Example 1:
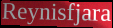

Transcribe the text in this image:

Reynisfjara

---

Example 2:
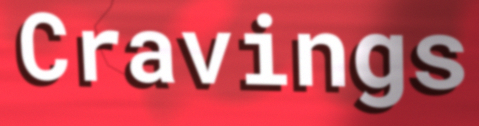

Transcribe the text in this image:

Cravings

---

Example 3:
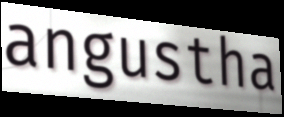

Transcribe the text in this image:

angustha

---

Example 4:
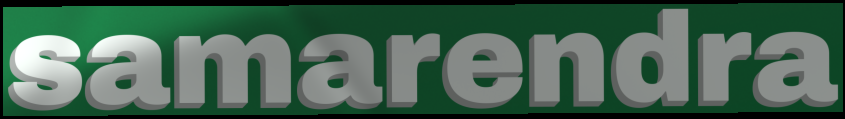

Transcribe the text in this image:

samarendra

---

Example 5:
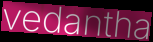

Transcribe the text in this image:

vedantha